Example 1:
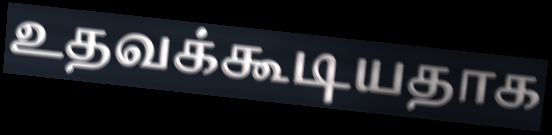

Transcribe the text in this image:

உதவக்கூடியதாக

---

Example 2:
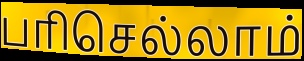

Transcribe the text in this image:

பரிசெல்லாம்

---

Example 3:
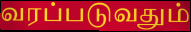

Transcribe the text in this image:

வரப்படுவதும்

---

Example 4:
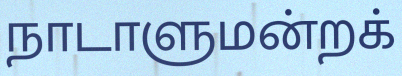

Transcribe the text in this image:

நாடாளுமன்றக்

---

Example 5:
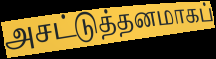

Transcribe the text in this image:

அசட்டுத்தனமாகப்